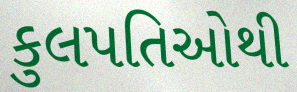
કુલપતિઓથી